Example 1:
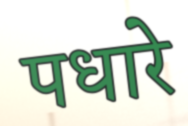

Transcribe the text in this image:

पधारे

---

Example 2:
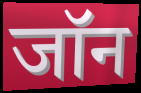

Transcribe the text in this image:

जॉन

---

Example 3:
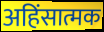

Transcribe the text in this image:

अहिंसात्मक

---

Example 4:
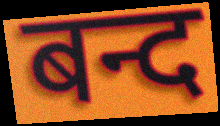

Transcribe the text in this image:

बन्द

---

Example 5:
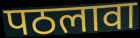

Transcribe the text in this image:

पठलावा